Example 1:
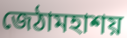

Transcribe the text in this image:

জেঠামহাশয়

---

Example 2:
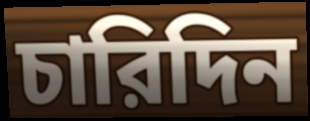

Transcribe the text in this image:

চারিদিন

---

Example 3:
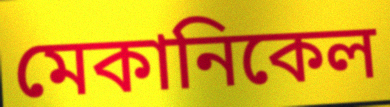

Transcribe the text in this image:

মেকানিকেল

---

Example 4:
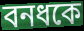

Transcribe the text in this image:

বনধকে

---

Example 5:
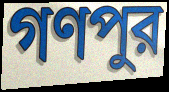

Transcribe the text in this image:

গণপুর